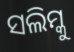
ସଲିମ୍କୁ